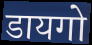
डायगो